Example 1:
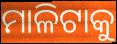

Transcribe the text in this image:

ମାଳିଟାକୁ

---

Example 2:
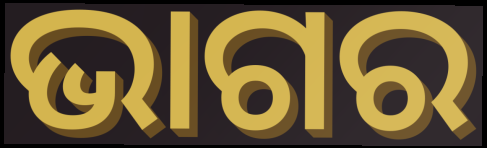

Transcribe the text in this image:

ଭାଗର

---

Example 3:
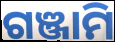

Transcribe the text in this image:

ଗଞ୍ଜାମି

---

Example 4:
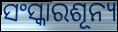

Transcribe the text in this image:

ସଂସ୍କାରଶୂନ୍ୟ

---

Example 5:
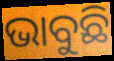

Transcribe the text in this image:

ଭାବୁଛି